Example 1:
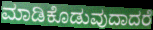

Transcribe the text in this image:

ಮಾಡಿಕೊಡುವುದಾದರೆ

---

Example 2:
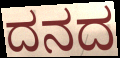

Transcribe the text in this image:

ದನದ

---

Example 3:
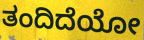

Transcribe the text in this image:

ತಂದಿದೆಯೋ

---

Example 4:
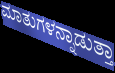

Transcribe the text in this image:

ಮಾತುಗಳನ್ನಾಡುತ್ತಾ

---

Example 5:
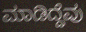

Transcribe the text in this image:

ಮಾಡಿದ್ದೆವು